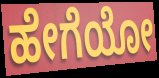
ಹೇಗೆಯೋ